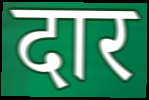
दार